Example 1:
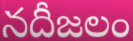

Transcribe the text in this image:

నదీజలం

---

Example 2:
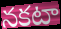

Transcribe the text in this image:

నకటా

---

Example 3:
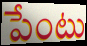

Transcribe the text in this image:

పేంటు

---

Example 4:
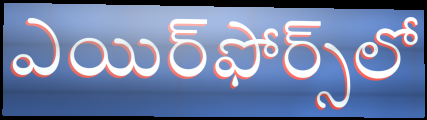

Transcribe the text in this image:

ఎయిర్‌ఫోర్స్‌లో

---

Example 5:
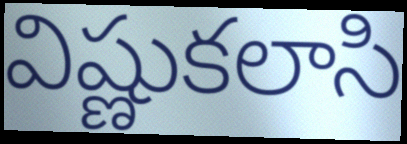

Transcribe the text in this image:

విష్ణుకలాసి